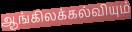
ஆங்கிலக்கல்வியும்